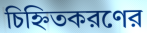
চিহ্নিতকরণের